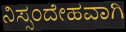
ನಿಸ್ಸಂದೇಹವಾಗಿ